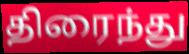
திரைந்து